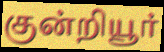
குன்றியூர்